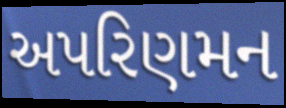
અપરિણમન